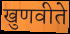
खुणवीते